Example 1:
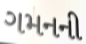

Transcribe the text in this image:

ગમનની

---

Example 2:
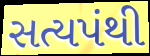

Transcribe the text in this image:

સત્યપંથી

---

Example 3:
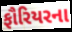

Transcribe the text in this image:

ફૌરિયરના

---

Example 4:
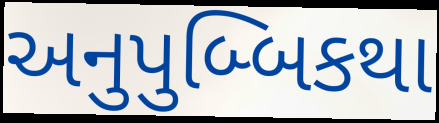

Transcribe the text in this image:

અનુપુબ્બિકથા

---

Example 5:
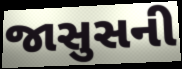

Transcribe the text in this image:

જાસુસની